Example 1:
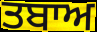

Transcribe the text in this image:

ਤਬਾਅ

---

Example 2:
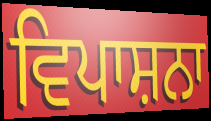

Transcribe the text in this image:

ਵਿਪਾਸ਼ਨਾ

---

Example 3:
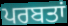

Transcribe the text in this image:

ਪਰਬਤਾਂ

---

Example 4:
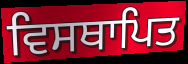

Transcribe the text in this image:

ਵਿਸਥਾਪਿਤ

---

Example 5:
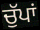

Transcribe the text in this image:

ਚੁੱਪਾਂ